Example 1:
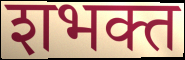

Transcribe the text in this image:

शभक्त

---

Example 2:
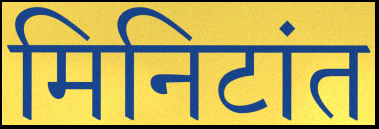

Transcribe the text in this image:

मिनिटांत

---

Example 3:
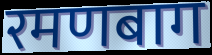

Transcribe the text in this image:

रमणबाग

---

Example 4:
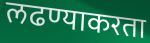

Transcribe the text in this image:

लढण्याकरता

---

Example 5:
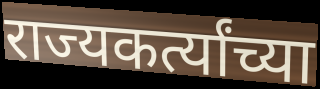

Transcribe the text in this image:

राज्यकर्त्यांच्या